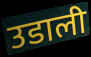
उडाली